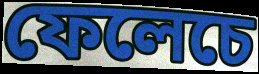
ফেলেচে